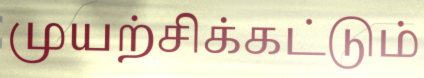
முயற்சிக்கட்டும்